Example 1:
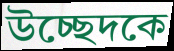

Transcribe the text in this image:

উচ্ছেদকে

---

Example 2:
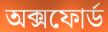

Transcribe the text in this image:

অক্সফোর্ড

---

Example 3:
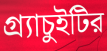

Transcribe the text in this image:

গ্র্যাচুইটির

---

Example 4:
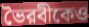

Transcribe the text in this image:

ভৈরবীকেও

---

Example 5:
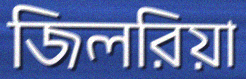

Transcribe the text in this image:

জিলরিয়া